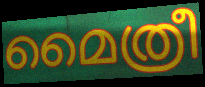
മൈത്രീ